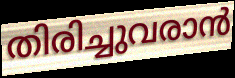
തിരിച്ചുവരാൻ